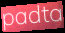
padta